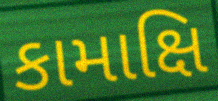
કામાક્ષિ